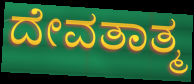
ದೇವತಾತ್ಮ